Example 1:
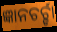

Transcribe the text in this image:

ଜ୍ଞାନଚର୍ଚ୍ଚା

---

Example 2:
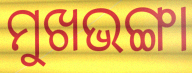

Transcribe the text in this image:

ମୁଖଭଙ୍ଗା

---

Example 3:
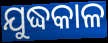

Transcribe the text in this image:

ଯୁଦ୍ଧକାଳ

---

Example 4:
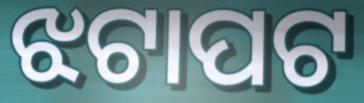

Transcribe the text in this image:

ଝଟାପଟ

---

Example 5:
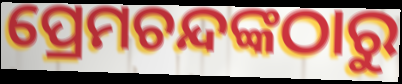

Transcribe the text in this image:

ପ୍ରେମଚନ୍ଦଙ୍କଠାରୁ